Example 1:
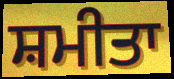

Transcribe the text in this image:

ਸ਼ਮੀਤਾ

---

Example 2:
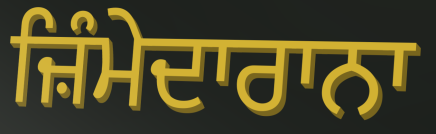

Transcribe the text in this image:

ਜ਼ਿੰਮੇਦਾਰਾਨਾ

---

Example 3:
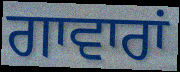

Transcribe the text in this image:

ਗਾਵਾਰਾਂ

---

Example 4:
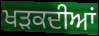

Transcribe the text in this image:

ਖੜਕਦੀਆਂ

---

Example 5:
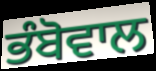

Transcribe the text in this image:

ਭੰਬੋਵਾਲ